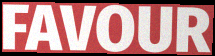
FAVOUR